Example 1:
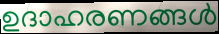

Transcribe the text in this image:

ഉദാഹരണങ്ങൾ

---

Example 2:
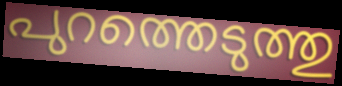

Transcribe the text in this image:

പുറത്തെടുത്തു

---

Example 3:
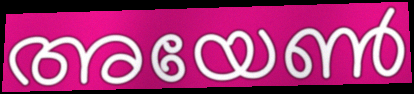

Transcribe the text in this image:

അയേൺ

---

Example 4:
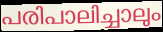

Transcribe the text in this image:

പരിപാലിച്ചാലും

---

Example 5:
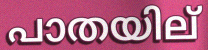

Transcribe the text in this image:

പാതയില്